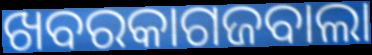
ଖବରକାଗଜବାଲା